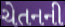
ચેતનની